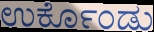
ಉರ್ಕೊಂಡು